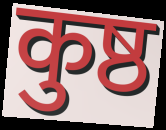
कुष्ठ